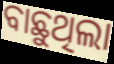
ବାଛୁଥିଲା